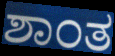
ಶಾಂತ